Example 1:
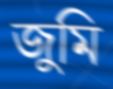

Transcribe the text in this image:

জুমি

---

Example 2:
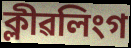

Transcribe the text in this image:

ক্লীৱলিংগ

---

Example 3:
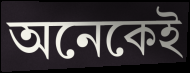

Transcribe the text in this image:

অনেকেই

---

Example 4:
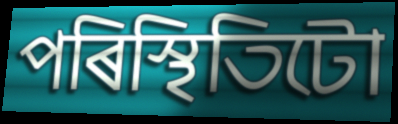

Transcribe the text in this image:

পৰিস্থিতিটো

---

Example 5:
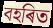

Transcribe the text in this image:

বহৰিত